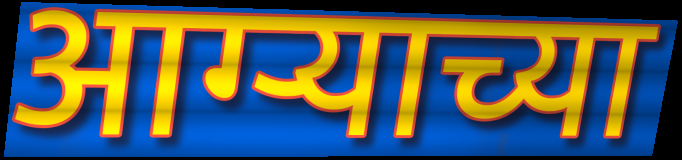
आग्ऱ्याच्या